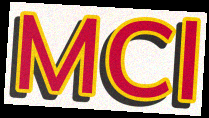
MCl